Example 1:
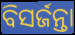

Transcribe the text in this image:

ବିସର୍ଜନ୍ତା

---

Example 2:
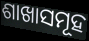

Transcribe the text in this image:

ଶାଖାସମୂହ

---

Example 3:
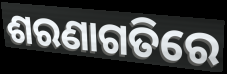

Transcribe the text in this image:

ଶରଣାଗତିରେ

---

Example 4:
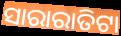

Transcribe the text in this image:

ସାରାରାତିଟା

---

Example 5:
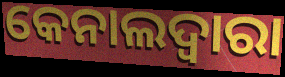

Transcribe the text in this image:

କେନାଲଦ୍ଵାରା